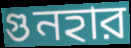
গুনহার